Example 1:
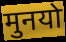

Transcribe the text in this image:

मुनयो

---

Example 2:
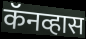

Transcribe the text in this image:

कॅनव्हास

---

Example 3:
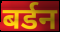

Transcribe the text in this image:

बर्डन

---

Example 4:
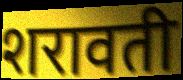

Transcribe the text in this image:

शरावती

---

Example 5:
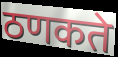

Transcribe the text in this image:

ठणकते